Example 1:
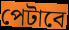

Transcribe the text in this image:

পেটাবে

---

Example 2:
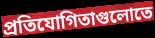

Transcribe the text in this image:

প্রতিযোগিতাগুলোতে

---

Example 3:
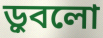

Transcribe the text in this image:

ড়ুবলো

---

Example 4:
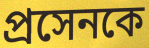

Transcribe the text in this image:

প্রসেনকে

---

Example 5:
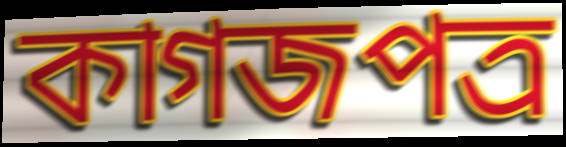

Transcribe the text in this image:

কাগজপত্র